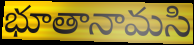
భూతానామసి